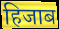
हिजाब